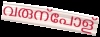
വരുന്പോള്